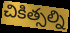
చికిత్సల్ని